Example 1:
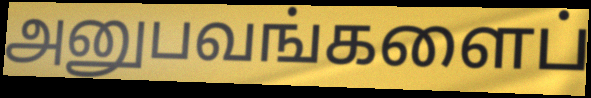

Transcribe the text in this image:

அனுபவங்களைப்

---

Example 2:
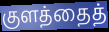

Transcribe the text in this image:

குளத்தைத்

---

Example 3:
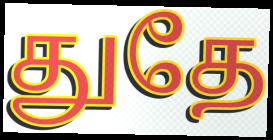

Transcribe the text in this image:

துதே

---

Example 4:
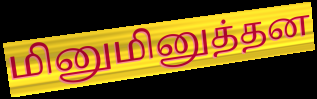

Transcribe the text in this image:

மினுமினுத்தன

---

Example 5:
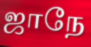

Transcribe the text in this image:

ஜாநே